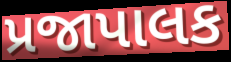
પ્રજાપાલક